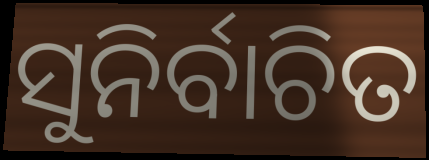
ସୁନିର୍ବାଚିତ